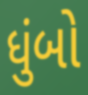
ધુંબો